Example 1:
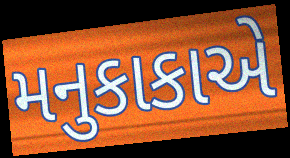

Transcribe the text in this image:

મનુકાકાએ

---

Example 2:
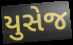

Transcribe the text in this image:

યુસેજ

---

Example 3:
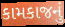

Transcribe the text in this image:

કામકાજનું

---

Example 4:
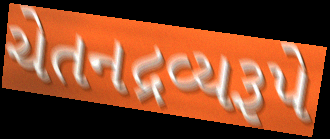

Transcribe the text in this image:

ચેતનદ્રવ્યરૂપે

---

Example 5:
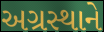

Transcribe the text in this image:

અગ્રસ્થાને